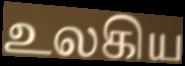
உலகிய